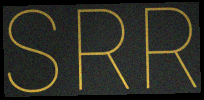
SRR